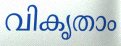
വികൃതാം